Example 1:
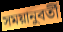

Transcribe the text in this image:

সময়ানুবর্তী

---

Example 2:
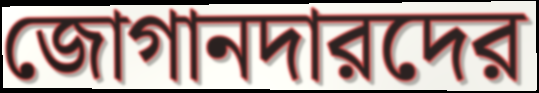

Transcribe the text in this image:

জোগানদারদের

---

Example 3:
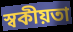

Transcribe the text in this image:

স্বকীয়তা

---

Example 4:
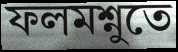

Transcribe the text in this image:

ফলমশ্নুতে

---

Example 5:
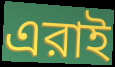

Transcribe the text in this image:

এরাই